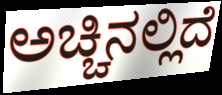
ಅಚ್ಚಿನಲ್ಲಿದೆ